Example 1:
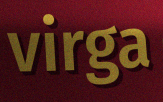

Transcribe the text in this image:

virga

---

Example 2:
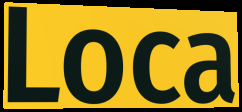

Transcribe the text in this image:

Loca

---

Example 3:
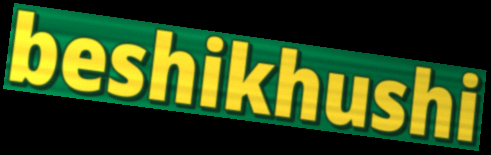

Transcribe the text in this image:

beshikhushi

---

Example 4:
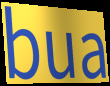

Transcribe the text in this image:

bua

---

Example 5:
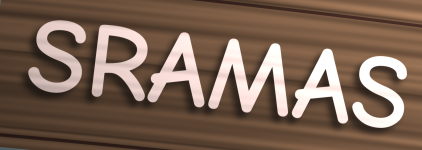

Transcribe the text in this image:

SRAMAS